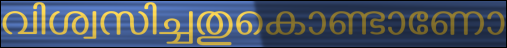
വിശ്വസിച്ചതുകൊണ്ടാണോ